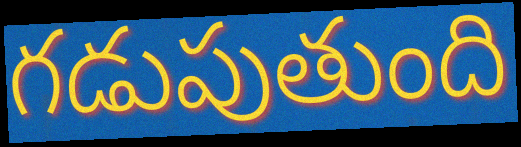
గడుపుతుంది